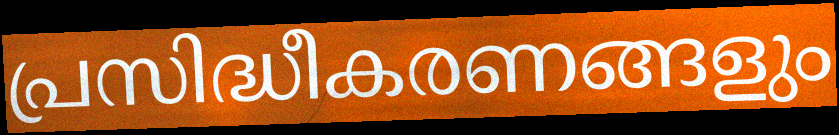
പ്രസിദ്ധീകരണങ്ങളും